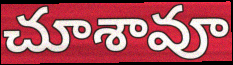
చూశావూ